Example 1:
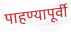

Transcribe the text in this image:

पाहण्यापूर्वी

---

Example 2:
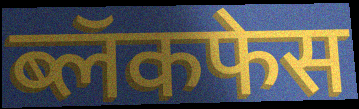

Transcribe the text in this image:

ब्लॅकफेस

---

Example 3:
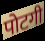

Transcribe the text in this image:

पोटगी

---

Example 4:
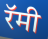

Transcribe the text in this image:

रॅमी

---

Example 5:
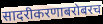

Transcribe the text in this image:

सादरीकरणाबरोबरच